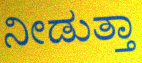
ನೀಡುತ್ತಾ